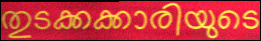
തുടക്കക്കാരിയുടെ